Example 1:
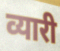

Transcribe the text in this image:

व्यारी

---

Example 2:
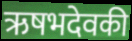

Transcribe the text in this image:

ऋषभदेवकी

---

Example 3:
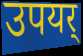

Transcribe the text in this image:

उपयर्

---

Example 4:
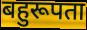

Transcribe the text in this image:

बहुरूपता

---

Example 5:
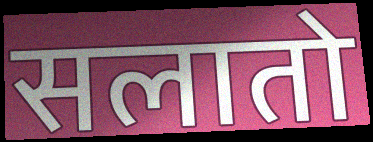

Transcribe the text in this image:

सलातो